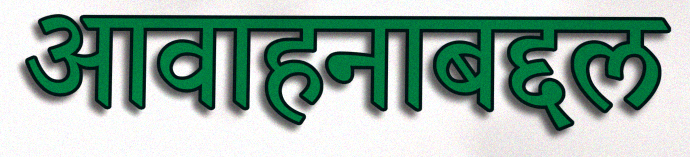
आवाहनाबद्दल